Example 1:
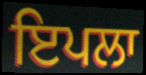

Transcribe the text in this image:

ਇਪਲਾ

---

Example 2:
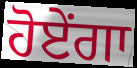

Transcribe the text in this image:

ਹੋਏਂਗਾ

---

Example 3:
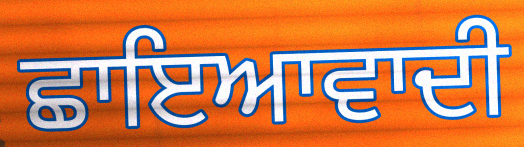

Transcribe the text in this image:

ਛਾਇਆਵਾਦੀ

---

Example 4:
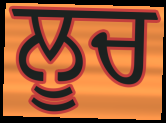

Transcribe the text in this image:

ਲੂਚ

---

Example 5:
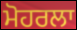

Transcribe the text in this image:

ਮੋਹਰਲਾ